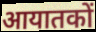
आयातकों